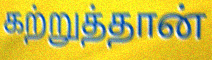
கற்றுத்தான்